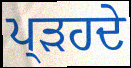
ਪ੍ੜਹਦੇ